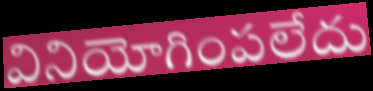
వినియోగింపలేదు